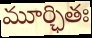
మూర్ఛితః